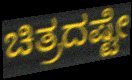
ಚಿತ್ರದಷ್ಟೇ